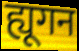
ह्यूगन